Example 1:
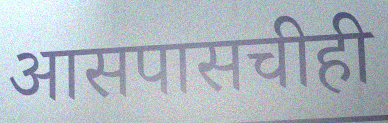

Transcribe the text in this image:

आसपासचीही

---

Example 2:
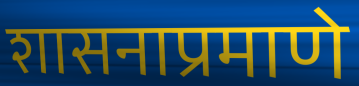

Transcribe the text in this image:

शासनाप्रमाणे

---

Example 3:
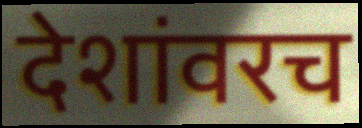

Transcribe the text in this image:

देशांवरच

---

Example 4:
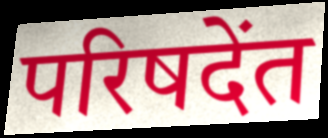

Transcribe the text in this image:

परिषदेंत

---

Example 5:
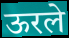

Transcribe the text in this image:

ऊरले